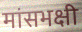
मांसभक्षी